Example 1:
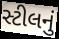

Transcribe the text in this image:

સ્ટીલનું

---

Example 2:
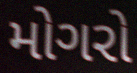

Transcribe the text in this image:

મોગરો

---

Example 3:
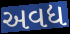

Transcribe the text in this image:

અવદ્ય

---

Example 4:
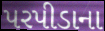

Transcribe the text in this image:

પરપીડાના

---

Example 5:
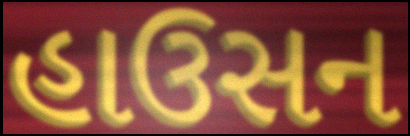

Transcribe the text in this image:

હાઉસન